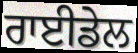
ਰਾਈਡੇਲ